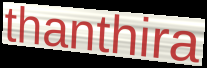
thanthira